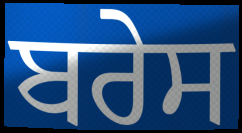
ਬਰੇਸ